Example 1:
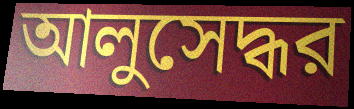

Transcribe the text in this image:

আলুসেদ্ধর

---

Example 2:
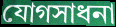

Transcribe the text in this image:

যোগসাধনা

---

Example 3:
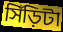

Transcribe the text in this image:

সিঁড়িটা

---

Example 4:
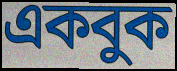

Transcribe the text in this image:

একবুক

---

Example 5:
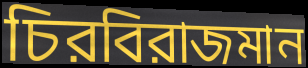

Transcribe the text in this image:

চিরবিরাজমান